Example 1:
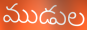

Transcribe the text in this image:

ముడుల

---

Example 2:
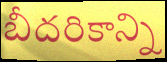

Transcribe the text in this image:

బీదరికాన్ని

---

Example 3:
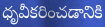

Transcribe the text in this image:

ధృవీకరించడానికి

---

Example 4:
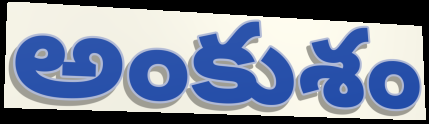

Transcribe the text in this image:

అంకుశం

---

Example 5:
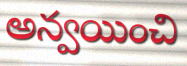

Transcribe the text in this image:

అన్వయించి